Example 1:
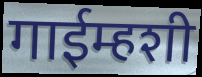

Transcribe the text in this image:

गाईम्हशी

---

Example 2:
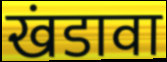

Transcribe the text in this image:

खंडावा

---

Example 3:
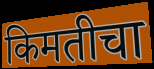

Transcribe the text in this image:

किमतीचा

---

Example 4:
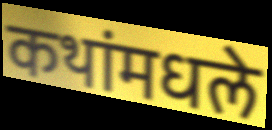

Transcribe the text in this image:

कथांमधले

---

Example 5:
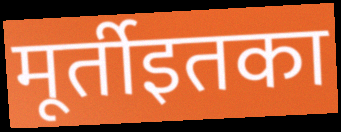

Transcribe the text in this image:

मूर्तीइतका